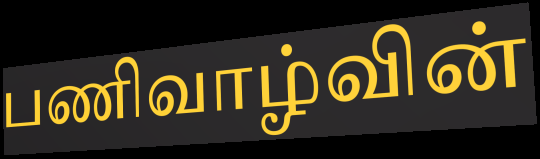
பணிவாழ்வின்